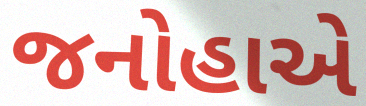
જનોહાએ